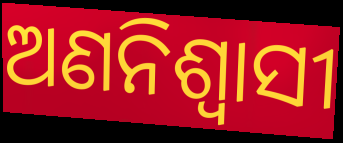
ଅଣନିଶ୍ୱାସୀ